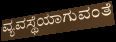
ವ್ಯವಸ್ಥೆಯಾಗುವಂತೆ